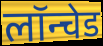
लॉन्चेड